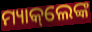
ମ୍ୟାକ୍‌ଲେଙ୍କ